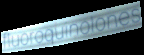
fluoroquinolones